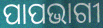
ପାପଭାଗୀ